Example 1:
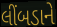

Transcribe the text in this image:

લીંબડાને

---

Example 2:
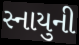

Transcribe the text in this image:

સ્નાયુની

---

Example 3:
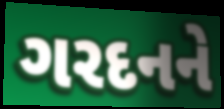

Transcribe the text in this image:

ગરદનને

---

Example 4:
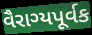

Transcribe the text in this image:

વૈરાગ્યપૂર્વક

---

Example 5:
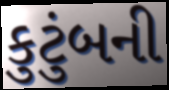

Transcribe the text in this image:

કુટુંબની